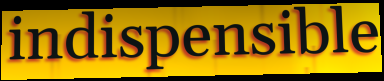
indispensible